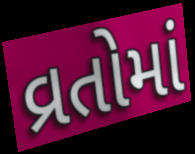
વ્રતોમાં